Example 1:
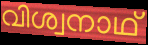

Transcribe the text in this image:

വിശ്വനാഥ്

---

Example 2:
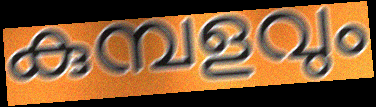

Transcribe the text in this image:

കുമ്പളവും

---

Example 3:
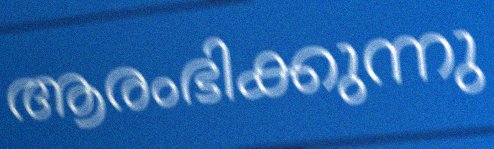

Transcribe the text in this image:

ആരംഭിക്കുന്നു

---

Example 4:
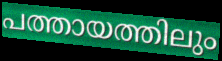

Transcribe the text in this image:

പത്തായത്തിലും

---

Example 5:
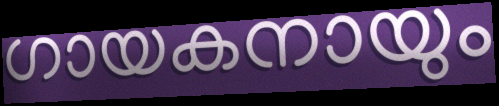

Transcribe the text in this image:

ഗായകനായും